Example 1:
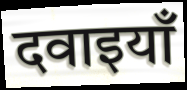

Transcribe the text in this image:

दवाइयाँ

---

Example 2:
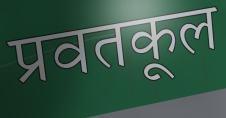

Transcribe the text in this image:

प्रवतकूल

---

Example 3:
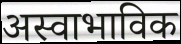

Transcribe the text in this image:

अस्वाभाविक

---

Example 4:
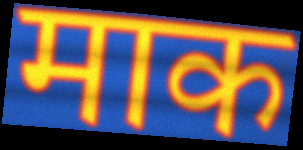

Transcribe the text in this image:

माक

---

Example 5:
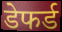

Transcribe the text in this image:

डेफर्ड